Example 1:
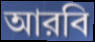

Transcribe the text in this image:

আরবি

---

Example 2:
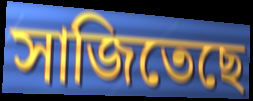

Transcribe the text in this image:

সাজিতেছে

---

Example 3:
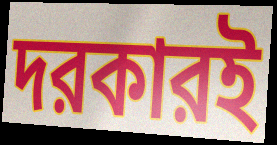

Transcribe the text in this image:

দরকারই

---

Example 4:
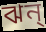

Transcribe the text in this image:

ঝন্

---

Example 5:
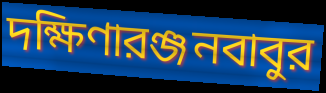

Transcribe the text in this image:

দক্ষিণারঞ্জনবাবুর